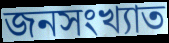
জনসংখ্যাত